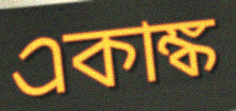
একাঙ্ক